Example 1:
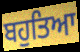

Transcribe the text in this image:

ਬਹੁਤਿਆ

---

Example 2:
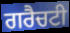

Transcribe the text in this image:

ਗਰੈਚਟੀ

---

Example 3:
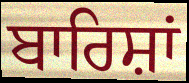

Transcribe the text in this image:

ਬਾਰਿਸ਼ਾਂ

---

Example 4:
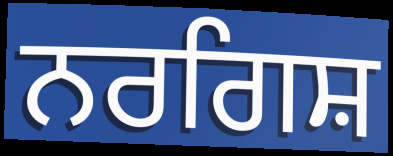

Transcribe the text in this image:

ਨਰਗਿਸ਼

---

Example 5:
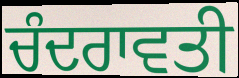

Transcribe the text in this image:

ਚੰਦਰਾਵਤੀ